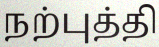
நற்புத்தி